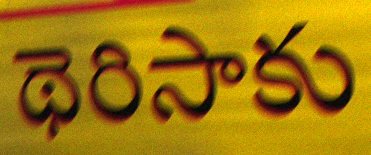
థెరిసాకు